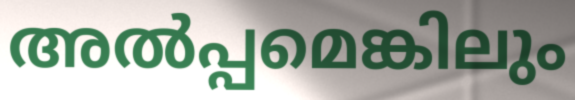
അൽപ്പമെങ്കിലും